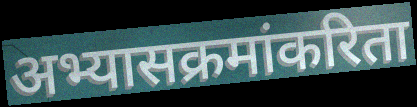
अभ्यासक्रमांकरिता